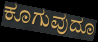
ಕೂಗುವುದೂ